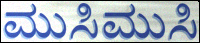
ಮುಸಿಮುಸಿ